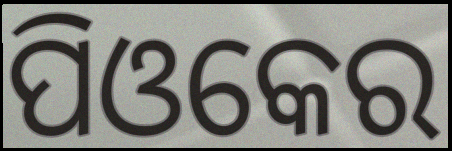
ପିଓକେର